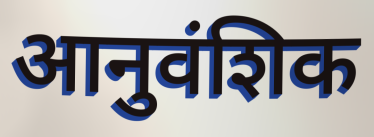
आनुवंशिक